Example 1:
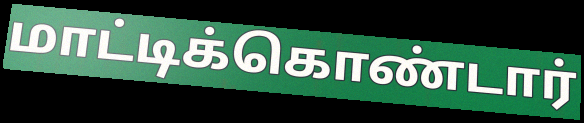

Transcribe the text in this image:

மாட்டிக்கொண்டார்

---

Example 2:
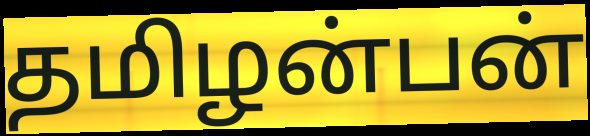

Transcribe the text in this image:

தமிழன்பன்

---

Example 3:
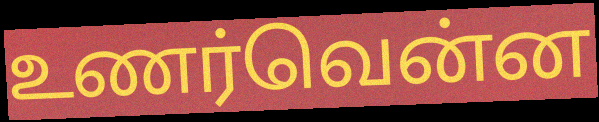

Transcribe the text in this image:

உணர்வென்ன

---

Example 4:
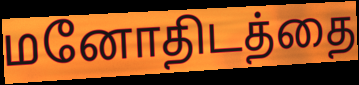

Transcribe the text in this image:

மனோதிடத்தை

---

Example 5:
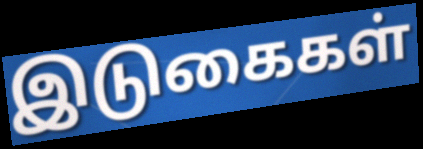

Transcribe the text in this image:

இடுகைகள்